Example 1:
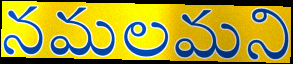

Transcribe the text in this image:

నమలమని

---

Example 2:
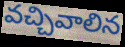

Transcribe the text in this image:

వచ్చివాలిన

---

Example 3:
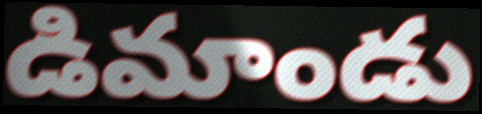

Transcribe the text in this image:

డిమాండు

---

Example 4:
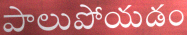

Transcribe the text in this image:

పాలుపోయడం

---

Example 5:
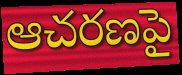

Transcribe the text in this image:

ఆచరణపై